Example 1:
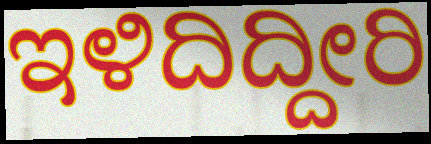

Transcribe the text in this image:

ಇಳಿದಿದ್ದೀರಿ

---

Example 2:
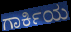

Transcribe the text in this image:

ಗಾರ್ಕಿಯ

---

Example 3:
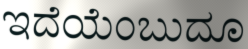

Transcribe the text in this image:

ಇದೆಯೆಂಬುದೂ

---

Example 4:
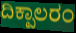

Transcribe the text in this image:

ದಿಕ್ಪಾಲರಂ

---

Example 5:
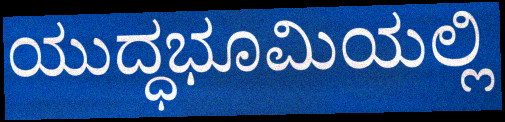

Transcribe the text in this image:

ಯುದ್ಧಭೂಮಿಯಲ್ಲಿ